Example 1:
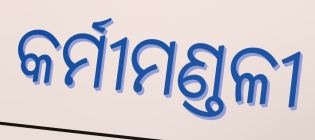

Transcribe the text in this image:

କର୍ମୀମଣ୍ଡଳୀ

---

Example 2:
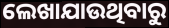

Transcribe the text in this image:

ଲେଖାଯାଉଥିବାରୁ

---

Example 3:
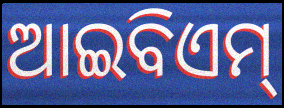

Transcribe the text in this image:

ଆଇବିଏମ୍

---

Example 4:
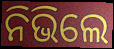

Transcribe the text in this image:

ନିଭିଲେ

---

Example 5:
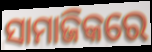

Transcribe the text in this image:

ସାମାଜିକରେ